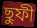
ছুফী